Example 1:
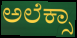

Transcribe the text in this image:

ಅಲೆಕ್ಸಾ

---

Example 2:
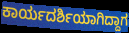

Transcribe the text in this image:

ಕಾರ್ಯದರ್ಶಿಯಾಗಿದ್ದಾಗ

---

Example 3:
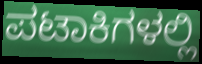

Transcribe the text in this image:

ಪಟಾಕಿಗಳಲ್ಲಿ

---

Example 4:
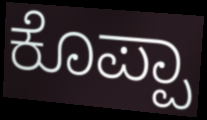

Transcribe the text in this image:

ಕೊಪ್ಪಾ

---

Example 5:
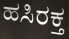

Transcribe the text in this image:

ಹಸಿರಕ್ತ